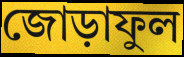
জোড়াফুল